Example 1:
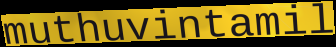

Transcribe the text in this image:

muthuvintamil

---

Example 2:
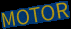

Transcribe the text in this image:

MOTOR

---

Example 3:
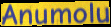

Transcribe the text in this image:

Anumolu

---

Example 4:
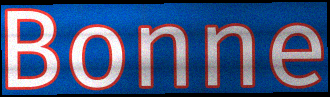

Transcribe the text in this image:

Bonne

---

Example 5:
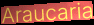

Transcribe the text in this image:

Araucaria